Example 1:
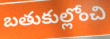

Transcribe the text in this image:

బతుకుల్లోంచి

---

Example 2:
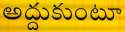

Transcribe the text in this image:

అద్దుకుంటూ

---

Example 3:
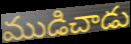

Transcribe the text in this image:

ముడిచాడు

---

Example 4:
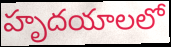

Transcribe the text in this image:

హృదయాలలో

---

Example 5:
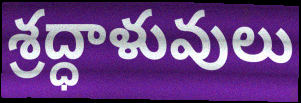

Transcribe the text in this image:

శ్రద్ధాళువులు